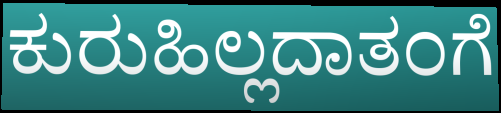
ಕುರುಹಿಲ್ಲದಾತಂಗೆ